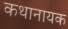
कथानायक